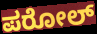
ಪರೋಲ್